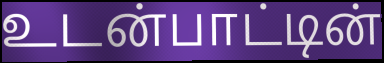
உடன்பாட்டின்